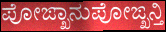
ಪೋಙ್ಖಾನುಪೋಙ್ಖನ್ತಿ